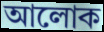
আলোক